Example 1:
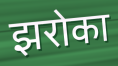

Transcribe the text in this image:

झरोका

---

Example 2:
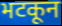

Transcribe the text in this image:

भटकून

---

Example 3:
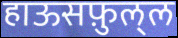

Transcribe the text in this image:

हाऊसफ़ुल्ल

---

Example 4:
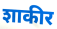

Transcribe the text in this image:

शाकीर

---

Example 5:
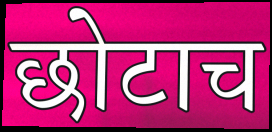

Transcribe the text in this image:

छोटाच